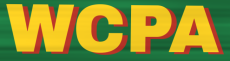
WCPA